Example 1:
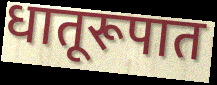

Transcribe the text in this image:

धातूरूपात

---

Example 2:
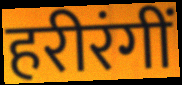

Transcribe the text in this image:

हरीरंगीं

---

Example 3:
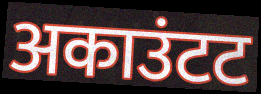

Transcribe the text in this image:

अकाउंटट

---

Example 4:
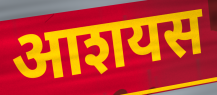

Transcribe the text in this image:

आशयस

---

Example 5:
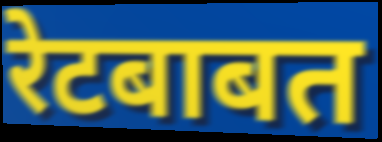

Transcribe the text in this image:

रेटबाबत